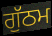
ਗੁੱਠਮ